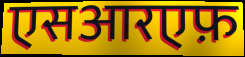
एसआरएफ़